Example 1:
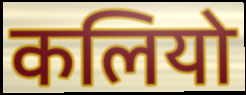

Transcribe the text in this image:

कलियो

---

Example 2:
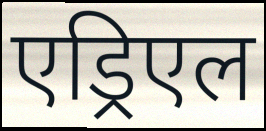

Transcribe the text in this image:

एड्रिएल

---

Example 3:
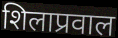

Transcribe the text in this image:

शिलाप्रवाल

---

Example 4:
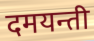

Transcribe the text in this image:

दमयन्ती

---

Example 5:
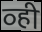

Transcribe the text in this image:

व्‍ही